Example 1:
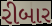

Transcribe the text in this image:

રીબાર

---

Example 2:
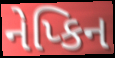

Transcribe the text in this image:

નેપ્કિન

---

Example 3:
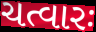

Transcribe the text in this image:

ચત્વારઃ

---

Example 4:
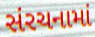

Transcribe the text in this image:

સંરચનામાં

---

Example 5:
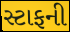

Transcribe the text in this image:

સ્ટાફની